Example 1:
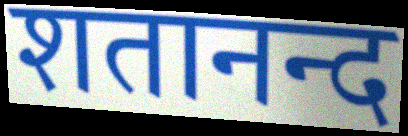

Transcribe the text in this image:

शतानन्द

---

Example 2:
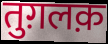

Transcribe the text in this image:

तुग़लक़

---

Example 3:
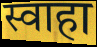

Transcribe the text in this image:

स्‍वाहा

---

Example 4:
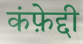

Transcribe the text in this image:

कंफ़ेद्दी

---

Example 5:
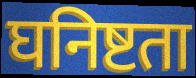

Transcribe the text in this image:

घनिष्टता